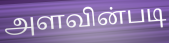
அளவின்படி